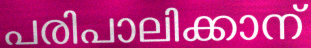
പരിപാലിക്കാന്